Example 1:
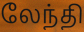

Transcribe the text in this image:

லேந்தி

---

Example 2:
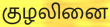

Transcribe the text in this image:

குழலினை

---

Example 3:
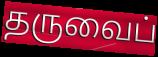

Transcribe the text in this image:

தருவைப்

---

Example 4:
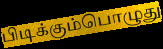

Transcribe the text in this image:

பிடிக்கும்பொழுது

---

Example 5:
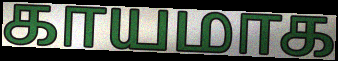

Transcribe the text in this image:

காயமாக